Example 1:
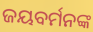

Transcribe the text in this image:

ଜୟବର୍ମନଙ୍କ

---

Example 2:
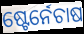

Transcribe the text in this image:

ଷ୍ଟେର୍ନେଚାଷ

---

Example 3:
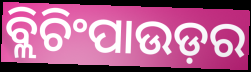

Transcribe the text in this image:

ବ୍ଲିଚିଂପାଉଡ଼ର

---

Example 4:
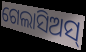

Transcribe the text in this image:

ଗେଲାସିଅସ୍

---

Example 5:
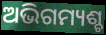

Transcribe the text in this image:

ଅଭିଗମ୍ୟଶ୍ଚ